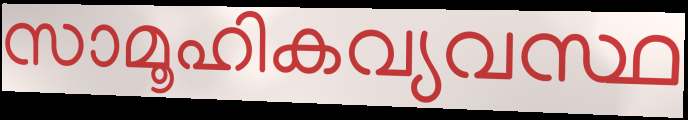
സാമൂഹികവ്യവസ്ഥ